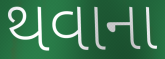
થવાના